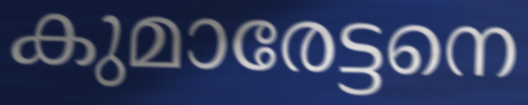
കുമാരേട്ടനെ